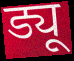
ड्यू